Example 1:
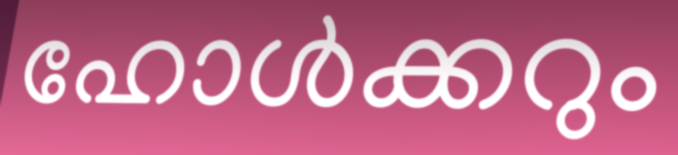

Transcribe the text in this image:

ഹോൾക്കറും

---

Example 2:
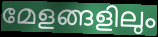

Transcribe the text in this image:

മേളങ്ങളിലും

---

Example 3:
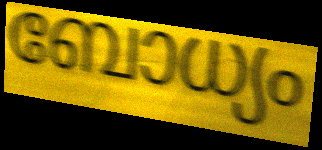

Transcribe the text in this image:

ബോധ്യം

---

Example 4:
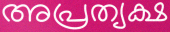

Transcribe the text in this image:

അപ്രത്യക്ഷ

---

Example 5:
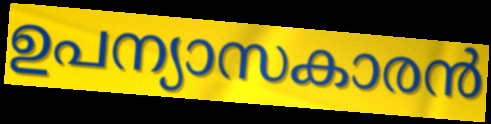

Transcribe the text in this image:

ഉപന്യാസകാരൻ